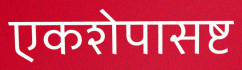
एकशेपासष्ट